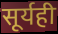
सूर्यही